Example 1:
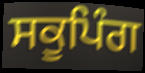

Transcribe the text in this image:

ਸਕੂਪਿੰਗ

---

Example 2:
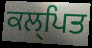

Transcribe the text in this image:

ਕਲ੍ਪਿਤ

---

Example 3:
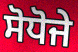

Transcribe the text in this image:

ਸੋਧੋਜੇ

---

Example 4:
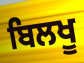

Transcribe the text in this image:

ਬਿਲਖੂ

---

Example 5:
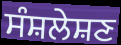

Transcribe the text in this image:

ਸੰਸ਼ਲੇਸ਼ਣ